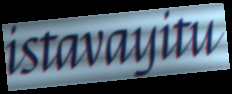
istavayitu